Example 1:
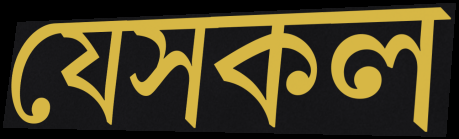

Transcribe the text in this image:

যেসকল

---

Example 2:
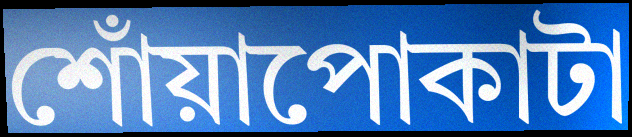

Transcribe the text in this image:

শোঁয়াপোকাটা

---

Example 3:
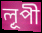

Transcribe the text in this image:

লূপী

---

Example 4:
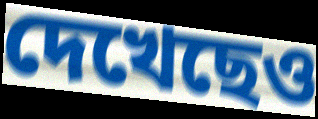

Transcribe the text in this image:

দেখেছেও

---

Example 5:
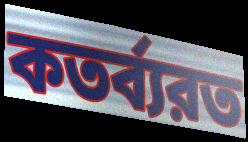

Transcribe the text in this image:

কতর্ব্যরত